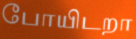
போயிடறா